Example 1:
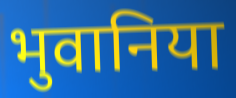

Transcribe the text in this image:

भुवानिया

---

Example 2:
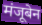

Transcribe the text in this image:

मंजूबेन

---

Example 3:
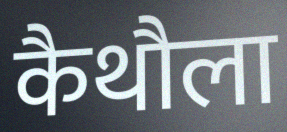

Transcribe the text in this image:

कैथौला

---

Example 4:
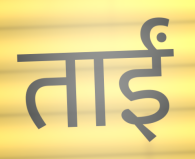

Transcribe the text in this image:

ताईं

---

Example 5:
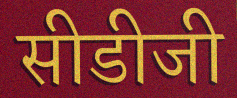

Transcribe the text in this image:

सीडीजी